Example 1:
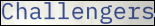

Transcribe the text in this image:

Challengers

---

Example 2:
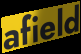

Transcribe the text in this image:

afield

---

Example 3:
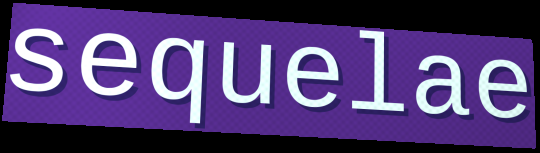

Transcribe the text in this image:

sequelae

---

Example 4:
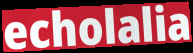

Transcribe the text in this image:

echolalia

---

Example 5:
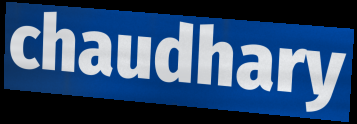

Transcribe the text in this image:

chaudhary